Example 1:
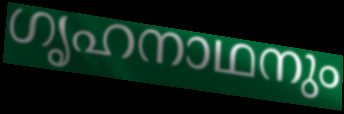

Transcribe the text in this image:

ഗൃഹനാഥനും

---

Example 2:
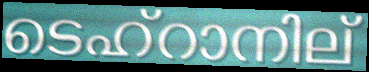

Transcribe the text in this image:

ടെഹ്റാനില്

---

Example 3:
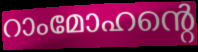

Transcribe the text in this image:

റാംമോഹന്റെ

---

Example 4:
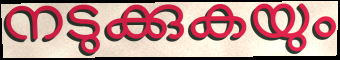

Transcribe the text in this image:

നടുക്കുകയും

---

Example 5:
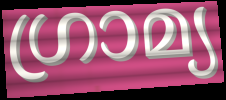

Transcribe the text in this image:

ഗ്രാമ്യ